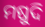
ମଷୁଦି